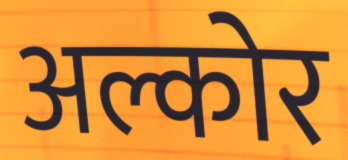
अल्कोर